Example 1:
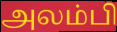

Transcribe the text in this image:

அலம்பி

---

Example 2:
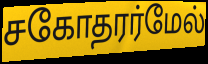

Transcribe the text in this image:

சகோதரர்மேல்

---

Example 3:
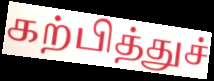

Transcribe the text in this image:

கற்பித்துச்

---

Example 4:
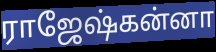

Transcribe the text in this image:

ராஜேஷ்கன்னா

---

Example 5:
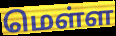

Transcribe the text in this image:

மெள்ள